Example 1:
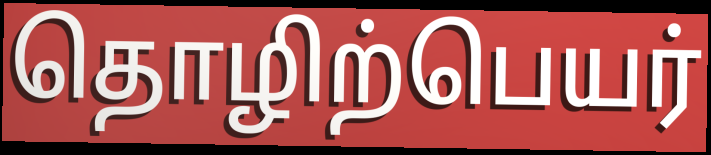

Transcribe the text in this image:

தொழிற்பெயர்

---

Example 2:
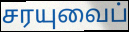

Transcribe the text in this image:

சரயுவைப்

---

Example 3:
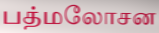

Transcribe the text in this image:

பத்மலோசன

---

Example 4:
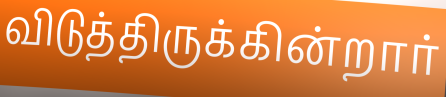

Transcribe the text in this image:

விடுத்திருக்கின்றார்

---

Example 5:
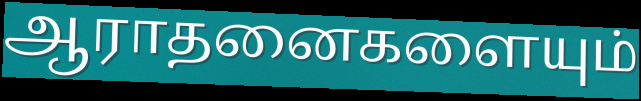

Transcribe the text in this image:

ஆராதனைகளையும்